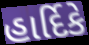
હાર્દિકે